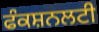
ਫੰਕਸ਼ਨਲਟੀ